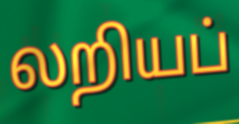
லறியப்